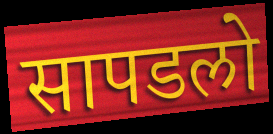
सापडलो